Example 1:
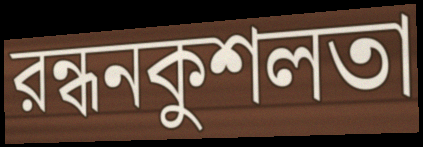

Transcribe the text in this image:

রন্ধনকুশলতা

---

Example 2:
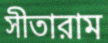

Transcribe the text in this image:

সীতারাম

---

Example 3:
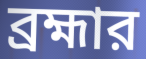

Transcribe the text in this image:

ব্রহ্মার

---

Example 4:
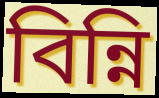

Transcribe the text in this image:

বিন্নি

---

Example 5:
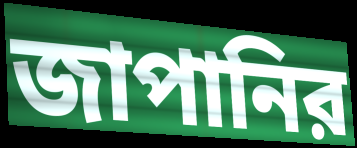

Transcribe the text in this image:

জাপানির